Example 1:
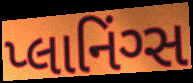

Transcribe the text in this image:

પ્લાનિંગ્સ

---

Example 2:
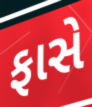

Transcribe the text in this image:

ફાસે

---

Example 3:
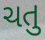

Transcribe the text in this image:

ચતુ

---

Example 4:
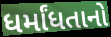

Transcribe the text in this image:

ધર્માંધતાનો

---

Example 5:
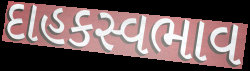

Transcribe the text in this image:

દાહકસ્વભાવ